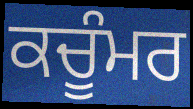
ਕਚੂੰਮਰ